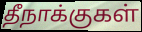
தீநாக்குகள்